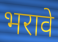
भरावे